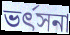
ভৰ্ৎসনা